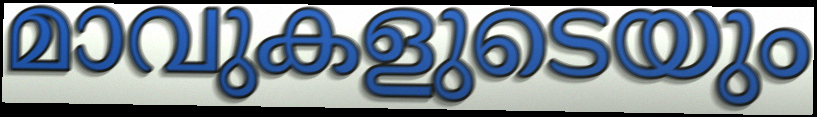
മാവുകളുടെയും